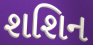
શશિન